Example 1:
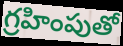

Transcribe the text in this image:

గ్రహింపుతో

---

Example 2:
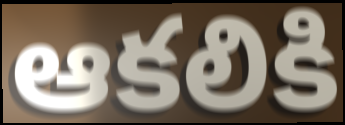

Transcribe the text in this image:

ఆకలికి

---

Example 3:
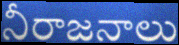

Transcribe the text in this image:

నీరాజనాలు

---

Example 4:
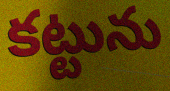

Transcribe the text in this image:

కట్టును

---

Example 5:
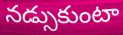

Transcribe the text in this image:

నడ్సుకుంటా